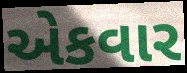
એકવાર